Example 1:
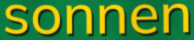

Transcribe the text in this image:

sonnen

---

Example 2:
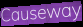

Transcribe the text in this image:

Causeway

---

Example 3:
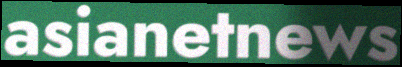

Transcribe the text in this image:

asianetnews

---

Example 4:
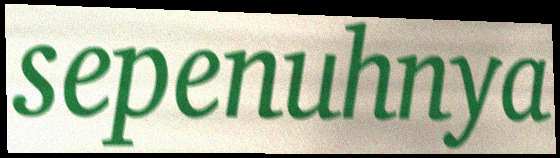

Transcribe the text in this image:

sepenuhnya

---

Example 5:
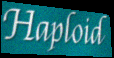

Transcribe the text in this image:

Haploid